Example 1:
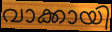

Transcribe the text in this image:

വാക്കായി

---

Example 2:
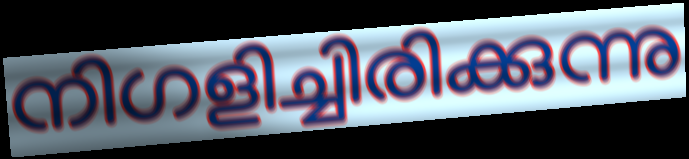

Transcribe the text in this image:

നിഗളിച്ചിരിക്കുന്നു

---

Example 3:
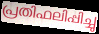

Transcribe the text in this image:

പ്രതിഫലിപ്പിച്ചു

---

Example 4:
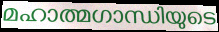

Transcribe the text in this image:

മഹാത്മഗാന്ധിയുടെ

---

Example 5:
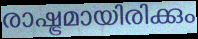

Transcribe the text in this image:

രാഷ്ട്രമായിരിക്കും